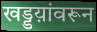
खड्डय़ांवरून